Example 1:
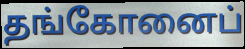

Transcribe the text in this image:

தங்கோனைப்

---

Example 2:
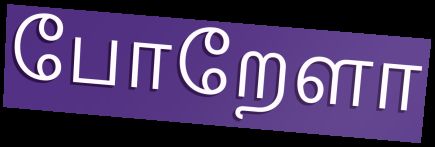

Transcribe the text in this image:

போறேளா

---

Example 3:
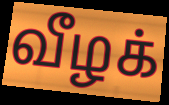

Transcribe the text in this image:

வீழக்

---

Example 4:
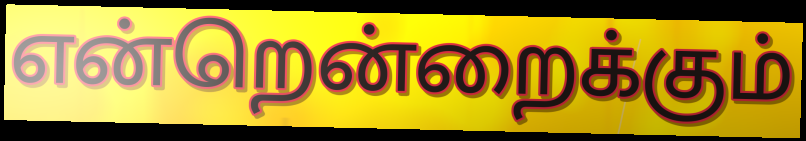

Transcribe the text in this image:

என்றென்றைக்கும்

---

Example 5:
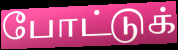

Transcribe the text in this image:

போட்டுக்